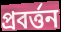
প্রবর্ত্তন